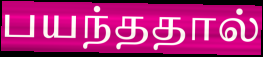
பயந்ததால்